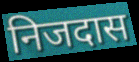
निजदास